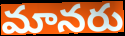
మానరు